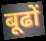
बूढों